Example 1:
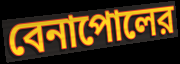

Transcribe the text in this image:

বেনাপোলের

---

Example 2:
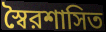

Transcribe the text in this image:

স্বৈরশাসিত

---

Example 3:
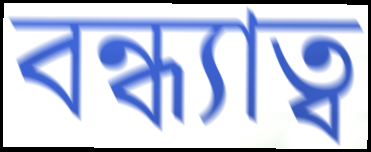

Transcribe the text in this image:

বন্ধ্যাত্ব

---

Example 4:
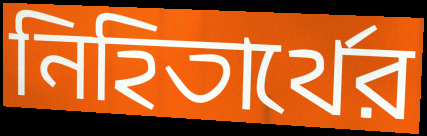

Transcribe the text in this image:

নিহিতার্থের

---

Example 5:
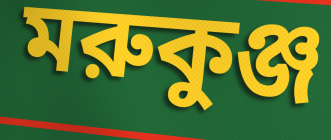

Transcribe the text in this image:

মরুকুঞ্জ